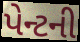
પેન્ટની